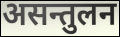
असन्तुलन